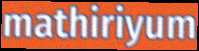
mathiriyum